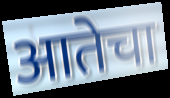
आतेचा